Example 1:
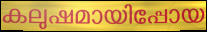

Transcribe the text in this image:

കലുഷമായിപ്പോയ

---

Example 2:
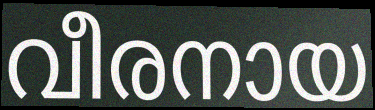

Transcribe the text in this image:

വീരനായ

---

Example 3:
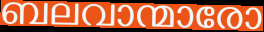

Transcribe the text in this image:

ബലവാന്മാരോ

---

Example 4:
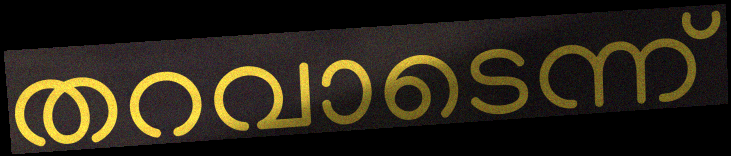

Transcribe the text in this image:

തറവാടെന്ന്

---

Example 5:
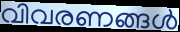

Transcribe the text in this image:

വിവരണങ്ങൾ